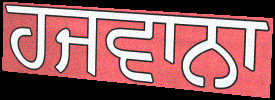
ਹਜਵਾਨਾ